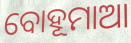
ବୋହୂମାଆ